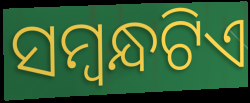
ସମ୍ୱନ୍ଧଟିଏ